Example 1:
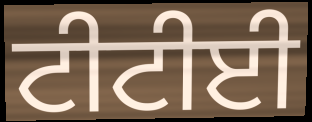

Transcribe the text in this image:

ਟੀਟੀਈ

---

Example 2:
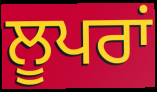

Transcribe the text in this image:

ਲੂਪਰਾਂ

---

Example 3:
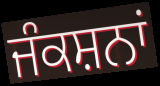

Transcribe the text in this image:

ਜੰਕਸ਼ਨਾਂ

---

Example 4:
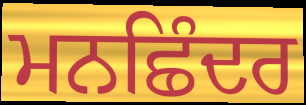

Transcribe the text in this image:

ਮਨਛਿੰਦਰ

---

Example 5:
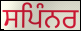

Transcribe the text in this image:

ਸਪਿੰਨਰ